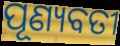
ପୂଣ୍ୟବତୀ